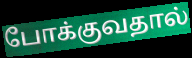
போக்குவதால்